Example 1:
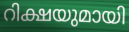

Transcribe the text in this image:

റിക്ഷയുമായി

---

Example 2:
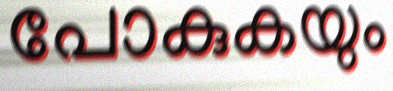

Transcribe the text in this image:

പോകുകയും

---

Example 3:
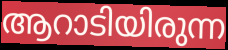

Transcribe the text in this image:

ആറാടിയിരുന്ന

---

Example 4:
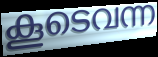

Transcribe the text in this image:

കൂടെവന്ന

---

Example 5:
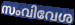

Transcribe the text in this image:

സംവിവേശ